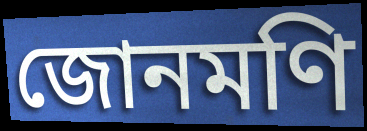
জোনমণি